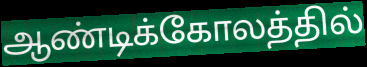
ஆண்டிக்கோலத்தில்